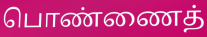
பொண்ணைத்